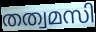
തത്വമസി